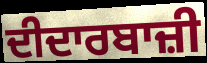
ਦੀਦਾਰਬਾਜ਼ੀ